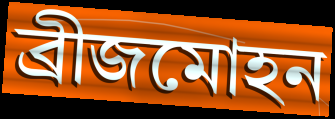
ব্রীজমোহন